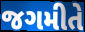
જગમીતે